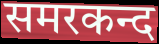
समरकन्द